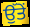
ਉੱਤੇਂ